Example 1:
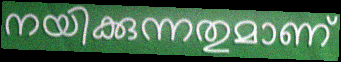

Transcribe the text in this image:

നയിക്കുന്നതുമാണ്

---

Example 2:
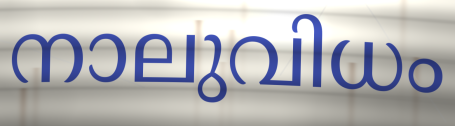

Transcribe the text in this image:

നാലുവിധം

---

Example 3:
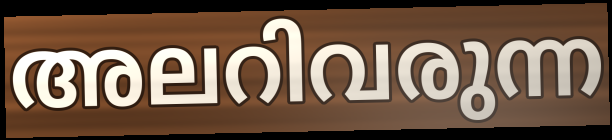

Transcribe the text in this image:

അലറിവരുന്ന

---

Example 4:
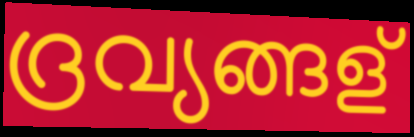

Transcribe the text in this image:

ദ്രവ്യങ്ങള്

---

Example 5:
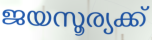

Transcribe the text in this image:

ജയസൂര്യക്ക്